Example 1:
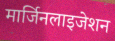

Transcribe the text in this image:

मार्जिनलाइजेशन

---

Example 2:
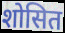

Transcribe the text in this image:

शोसित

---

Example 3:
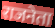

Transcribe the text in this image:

राजनेता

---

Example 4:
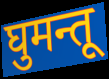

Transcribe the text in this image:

घुमन्तू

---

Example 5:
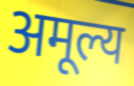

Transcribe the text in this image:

अमूल्य